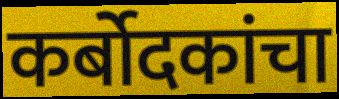
कर्बोदकांचा